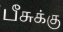
பீசுக்கு